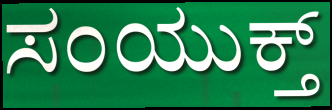
ಸಂಯುಕ್ತ್